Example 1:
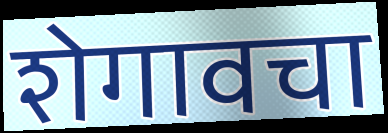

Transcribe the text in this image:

शेगावचा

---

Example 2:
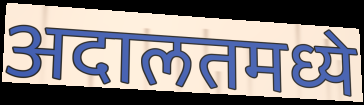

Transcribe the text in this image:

अदालतमध्ये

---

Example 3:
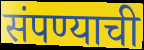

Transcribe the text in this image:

संपण्याची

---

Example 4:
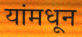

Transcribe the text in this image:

यांमधून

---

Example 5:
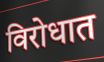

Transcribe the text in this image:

विरोधात